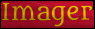
Imager